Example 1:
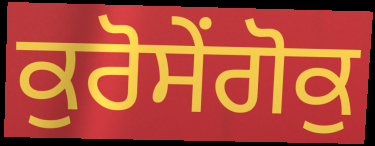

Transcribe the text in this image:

ਕੁਰੋਸੇਂਗੋਕੁ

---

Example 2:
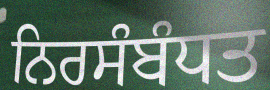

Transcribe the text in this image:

ਨਿਰਸੰਬੰਧਤ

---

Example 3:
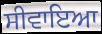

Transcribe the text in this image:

ਸੀਵਾਇਆ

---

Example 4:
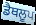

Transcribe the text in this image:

ਡੈਥਲੂਪ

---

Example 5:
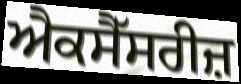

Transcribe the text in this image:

ਐਕਸੈੱਸਰੀਜ਼